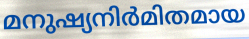
മനുഷ്യനിർമിതമായ